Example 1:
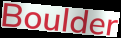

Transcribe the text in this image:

Boulder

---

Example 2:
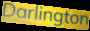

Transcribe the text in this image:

Darlington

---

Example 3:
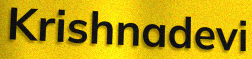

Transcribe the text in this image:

Krishnadevi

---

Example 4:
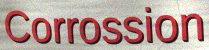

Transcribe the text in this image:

Corrossion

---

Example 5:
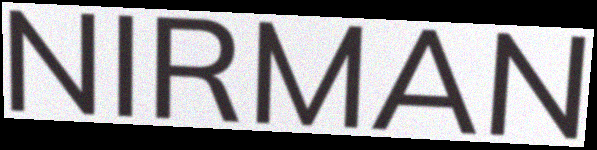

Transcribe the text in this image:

NIRMAN